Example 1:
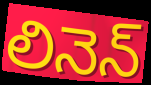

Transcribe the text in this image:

లినెన్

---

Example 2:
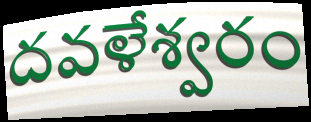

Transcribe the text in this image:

దవళేశ్వరం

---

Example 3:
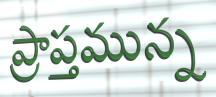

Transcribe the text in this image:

ప్రాప్తమున్న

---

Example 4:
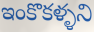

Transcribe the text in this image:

ఇంకొకళ్ళని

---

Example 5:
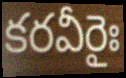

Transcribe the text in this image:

కరవీరైః